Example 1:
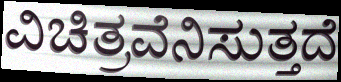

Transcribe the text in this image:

ವಿಚಿತ್ರವೆನಿಸುತ್ತದೆ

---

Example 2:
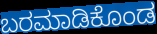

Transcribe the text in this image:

ಬರಮಾಡಿಕೊಂಡ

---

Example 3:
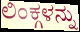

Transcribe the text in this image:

ಲಿಂಕ್ಗಳನ್ನು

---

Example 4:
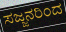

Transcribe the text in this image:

ಸಜ್ಜನರಿಂದ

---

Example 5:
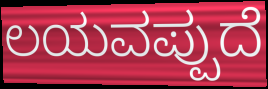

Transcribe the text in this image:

ಲಯವಪ್ಪುದೆ